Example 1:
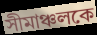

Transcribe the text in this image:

সীমাঞ্চলকে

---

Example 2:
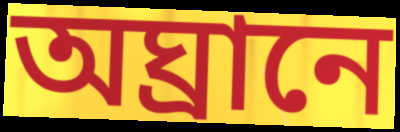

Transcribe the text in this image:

অঘ্রানে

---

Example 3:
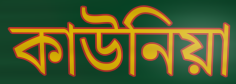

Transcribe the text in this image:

কাউনিয়া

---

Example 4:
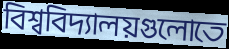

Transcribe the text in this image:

বিশ্ববিদ্যালয়গুলোতে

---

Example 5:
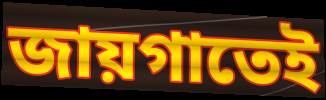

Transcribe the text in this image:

জায়গাতেই